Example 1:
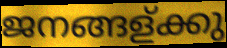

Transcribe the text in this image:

ജനങ്ങള്ക്കു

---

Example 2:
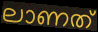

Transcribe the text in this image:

ലാണത്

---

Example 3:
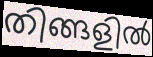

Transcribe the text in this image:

തിങ്ങളിൽ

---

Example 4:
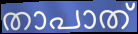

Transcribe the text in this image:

താപാത്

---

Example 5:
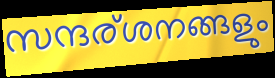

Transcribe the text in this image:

സന്ദര്ശനങ്ങളും